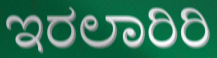
ಇರಲಾರಿರಿ